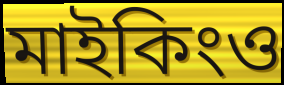
মাইকিংও